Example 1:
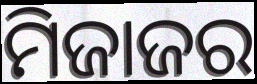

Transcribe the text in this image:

ମିଜାଜର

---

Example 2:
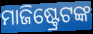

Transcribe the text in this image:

ମାଜିଷ୍ଟ୍ରେଟଙ୍କ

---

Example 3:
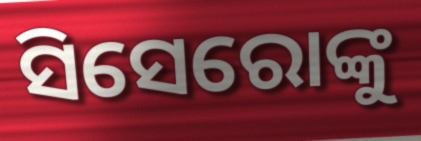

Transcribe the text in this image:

ସିସେରୋଙ୍କୁ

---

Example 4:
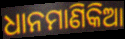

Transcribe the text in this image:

ଧାନମାଣିକିଆ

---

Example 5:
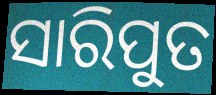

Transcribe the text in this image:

ସାରିପୁତ